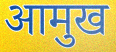
आमुख